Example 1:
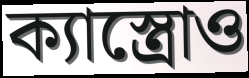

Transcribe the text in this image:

ক্যাস্ত্রোও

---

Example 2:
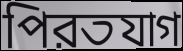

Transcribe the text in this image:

পিরতযাগ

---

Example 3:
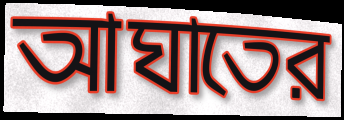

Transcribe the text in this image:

আঘাতের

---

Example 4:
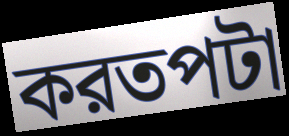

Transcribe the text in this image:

করতপটা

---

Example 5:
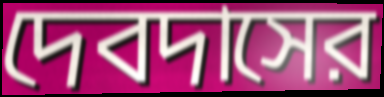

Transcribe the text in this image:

দেবদাসের